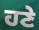
ਹਣੇ